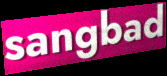
sangbad